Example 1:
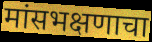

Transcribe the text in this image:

मांसभक्षणाचा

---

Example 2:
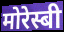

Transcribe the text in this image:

मोरेस्बी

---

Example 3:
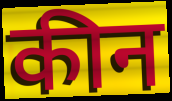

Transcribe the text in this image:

कीन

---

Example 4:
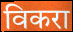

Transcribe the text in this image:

विकरा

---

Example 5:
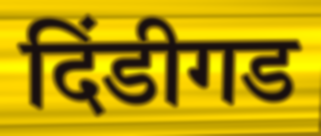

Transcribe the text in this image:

दिंडीगड